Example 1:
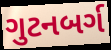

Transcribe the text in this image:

ગુટનબર્ગ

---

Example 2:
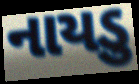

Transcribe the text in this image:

નાયડુ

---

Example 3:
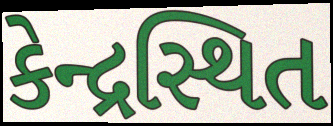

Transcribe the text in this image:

કેન્દ્રસ્થિત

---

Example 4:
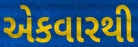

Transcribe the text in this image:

એકવારથી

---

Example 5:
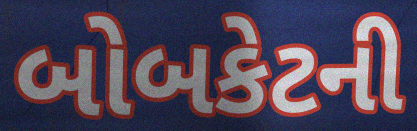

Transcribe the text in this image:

બોબકેટની